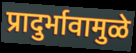
प्रादुर्भावामुळे